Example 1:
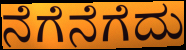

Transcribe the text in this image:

ನೆಗೆನೆಗೆದು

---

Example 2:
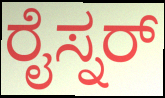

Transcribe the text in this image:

ರೈಸ್ನರ್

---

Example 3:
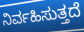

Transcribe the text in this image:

ನಿರ್ವಹಿಸುತ್ತದೆ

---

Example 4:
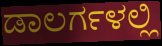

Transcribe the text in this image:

ಡಾಲರ್ಗಳಲ್ಲಿ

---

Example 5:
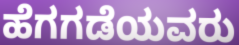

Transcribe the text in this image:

ಹೆಗಗಡೆಯವರು